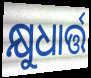
କ୍ଷୁଧାର୍ତ୍ତ